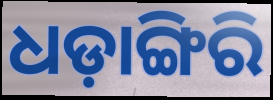
ଧଡ଼ାଙ୍ଗିରି